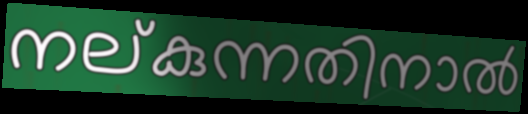
നല്കുന്നതിനാൽ